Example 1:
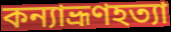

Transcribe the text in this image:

কন্যাভ্রূণহত্যা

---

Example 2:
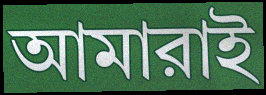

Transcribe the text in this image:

আমারাই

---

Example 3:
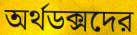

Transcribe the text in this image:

অর্থডক্সদের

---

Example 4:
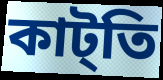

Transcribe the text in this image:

কাট্তি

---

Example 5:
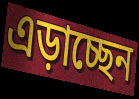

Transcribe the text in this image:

এড়াচ্ছেন